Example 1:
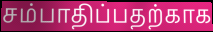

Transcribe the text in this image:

சம்பாதிப்பதற்காக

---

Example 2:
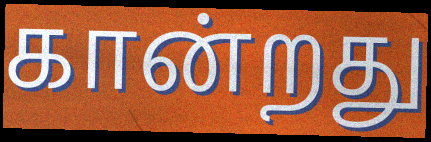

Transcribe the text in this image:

கான்றது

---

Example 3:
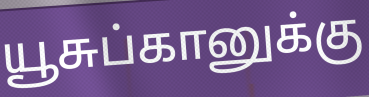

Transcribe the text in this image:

யூசுப்கானுக்கு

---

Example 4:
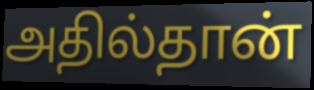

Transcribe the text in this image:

அதில்தான்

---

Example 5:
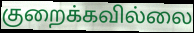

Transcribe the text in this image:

குறைக்கவில்லை